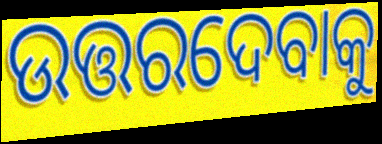
ଉତ୍ତରଦେବାକୁ